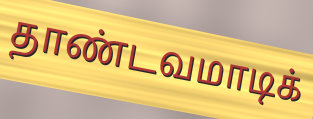
தாண்டவமாடிக்